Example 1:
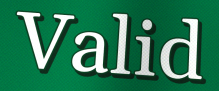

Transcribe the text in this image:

Valid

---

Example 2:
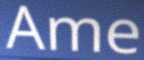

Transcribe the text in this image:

Ame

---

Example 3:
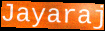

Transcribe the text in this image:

Jayaraj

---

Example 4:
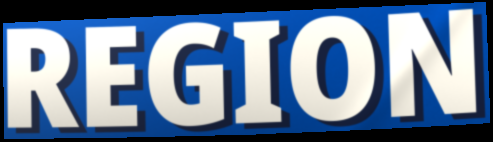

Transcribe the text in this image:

REGION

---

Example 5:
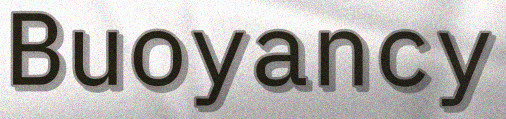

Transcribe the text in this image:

Buoyancy